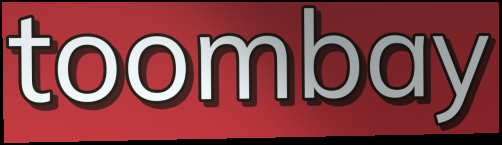
toombay